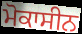
ਮੋਕਾਸੀਨ